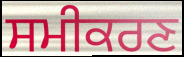
ਸਮੀਕਰਣ